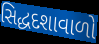
સિદ્ધદશાવાળો